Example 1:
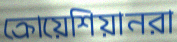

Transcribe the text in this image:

ক্রোয়েশিয়ানরা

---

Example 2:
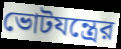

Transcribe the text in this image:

ভোটযন্ত্রের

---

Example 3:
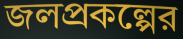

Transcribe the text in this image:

জলপ্রকল্পের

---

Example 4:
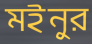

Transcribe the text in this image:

মইনুর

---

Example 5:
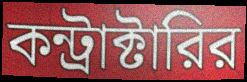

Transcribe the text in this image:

কন্ট্রাক্টারির